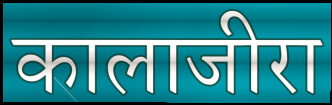
कालाजीरा